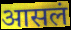
आसलं